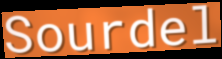
Sourdel